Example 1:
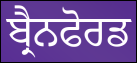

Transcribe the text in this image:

ਬ੍ਰੈਨਫੋਰਡ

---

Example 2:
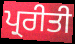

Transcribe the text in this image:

ਪ੍ਰਰੀਤੀ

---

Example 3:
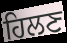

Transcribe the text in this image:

ਹਿਲਣ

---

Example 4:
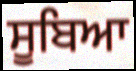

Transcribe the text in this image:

ਸੂਬਿਆ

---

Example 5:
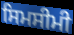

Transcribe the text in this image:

ਸਿਮਸੀਮੀ